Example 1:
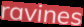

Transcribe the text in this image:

ravines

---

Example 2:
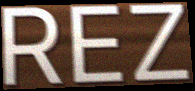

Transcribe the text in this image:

REZ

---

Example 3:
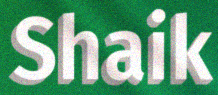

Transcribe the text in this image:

Shaik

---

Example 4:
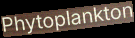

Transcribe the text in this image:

Phytoplankton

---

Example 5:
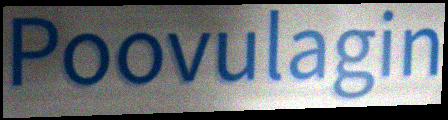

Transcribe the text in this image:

Poovulagin